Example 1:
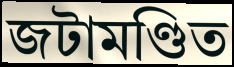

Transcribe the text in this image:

জটামণ্ডিত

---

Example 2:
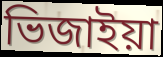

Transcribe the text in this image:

ভিজাইয়া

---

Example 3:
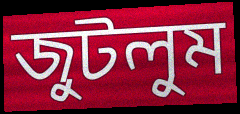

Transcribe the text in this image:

জুটলুম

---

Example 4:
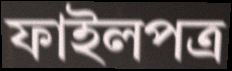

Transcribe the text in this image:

ফাইলপত্র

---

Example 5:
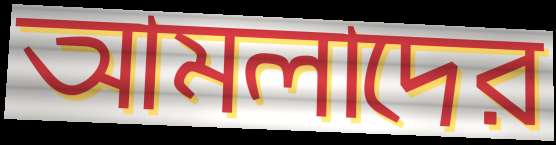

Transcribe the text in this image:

আমলাদের